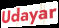
Udayar